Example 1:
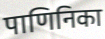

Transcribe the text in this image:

पाणिनिका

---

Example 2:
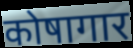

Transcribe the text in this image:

कोषागार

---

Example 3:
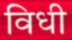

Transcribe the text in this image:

विधी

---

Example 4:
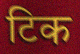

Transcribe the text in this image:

टिक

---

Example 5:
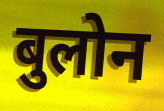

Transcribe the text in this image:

बुलोन